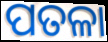
ପତଳା